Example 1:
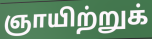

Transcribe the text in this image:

ஞாயிற்றுக்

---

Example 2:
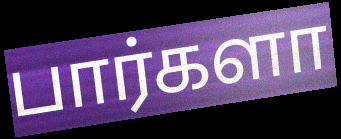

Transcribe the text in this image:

பார்களா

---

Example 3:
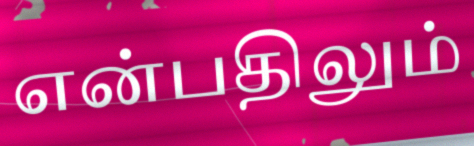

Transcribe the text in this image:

என்பதிலும்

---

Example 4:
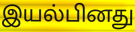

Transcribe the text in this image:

இயல்பினது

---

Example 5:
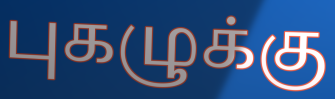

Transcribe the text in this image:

புகழுக்கு